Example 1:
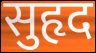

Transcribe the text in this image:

सुहृद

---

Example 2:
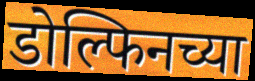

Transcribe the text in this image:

डोल्फिनच्या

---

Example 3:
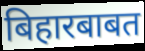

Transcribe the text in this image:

बिहारबाबत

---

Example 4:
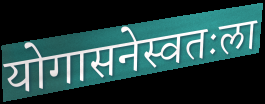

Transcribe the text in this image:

योगासनेस्वतःला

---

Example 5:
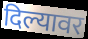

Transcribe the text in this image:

दिल्यावर